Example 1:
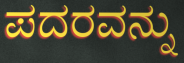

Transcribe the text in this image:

ಪದರವನ್ನು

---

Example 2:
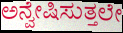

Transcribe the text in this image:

ಅನ್ವೇಷಿಸುತ್ತಲೇ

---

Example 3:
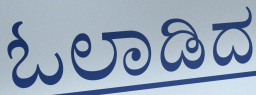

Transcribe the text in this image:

ಓಲಾಡಿದ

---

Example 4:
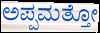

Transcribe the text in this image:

ಅಪ್ಪಮತ್ತೋ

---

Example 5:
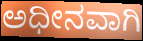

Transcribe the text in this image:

ಅಧೀನವಾಗಿ